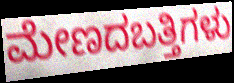
ಮೇಣದಬತ್ತಿಗಳು